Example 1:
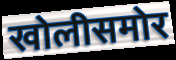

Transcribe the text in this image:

खोलीसमोर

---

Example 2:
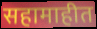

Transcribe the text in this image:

सहामाहीत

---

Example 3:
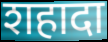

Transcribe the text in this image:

शहादा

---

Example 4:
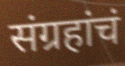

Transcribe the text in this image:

संग्रहांचं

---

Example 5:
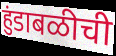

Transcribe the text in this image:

हुंडाबळीची